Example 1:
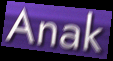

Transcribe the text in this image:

Anak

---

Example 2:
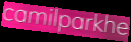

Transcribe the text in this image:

camilparkhe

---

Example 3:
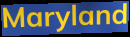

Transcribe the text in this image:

Maryland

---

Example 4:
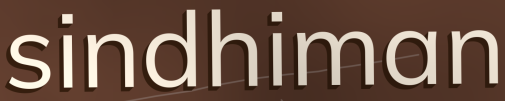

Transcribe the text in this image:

sindhiman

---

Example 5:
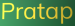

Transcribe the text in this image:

Pratap